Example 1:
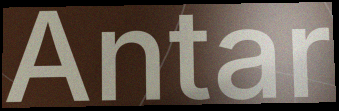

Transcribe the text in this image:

Antar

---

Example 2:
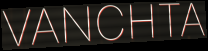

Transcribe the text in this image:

VANCHTA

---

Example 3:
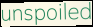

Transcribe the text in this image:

unspoiled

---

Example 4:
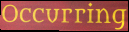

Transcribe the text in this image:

Occurring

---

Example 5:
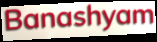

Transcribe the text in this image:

Banashyam